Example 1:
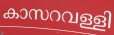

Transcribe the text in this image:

കാസറവള്ളി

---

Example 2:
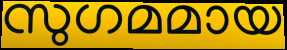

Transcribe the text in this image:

സുഗമമായ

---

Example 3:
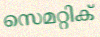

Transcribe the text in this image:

സെമറ്റിക്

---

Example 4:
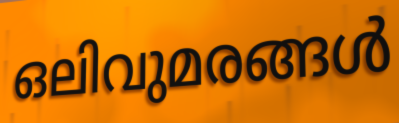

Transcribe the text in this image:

ഒലിവുമരങ്ങൾ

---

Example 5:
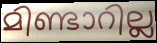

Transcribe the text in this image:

മിണ്ടാറില്ല